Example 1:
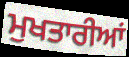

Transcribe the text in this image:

ਮੁਖਤਾਰੀਆਂ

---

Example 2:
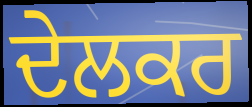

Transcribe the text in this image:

ਦੇਲਕਰ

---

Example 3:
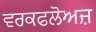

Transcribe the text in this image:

ਵਰਕਫਲੋਅਜ਼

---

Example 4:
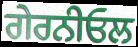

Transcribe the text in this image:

ਗੇਰਨੀਓਲ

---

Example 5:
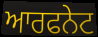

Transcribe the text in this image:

ਆਰਫਨੇਟ